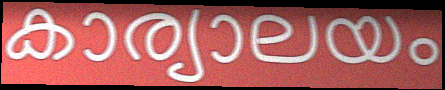
കാര്യാലയം